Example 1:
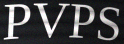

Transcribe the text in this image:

PVPS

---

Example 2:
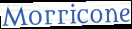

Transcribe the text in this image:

Morricone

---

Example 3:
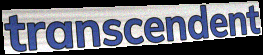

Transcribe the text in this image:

transcendent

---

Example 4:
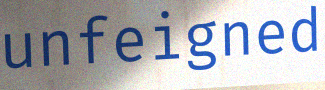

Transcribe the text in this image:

unfeigned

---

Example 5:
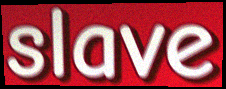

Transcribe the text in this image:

slave